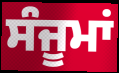
ਸੰਜੂਮਾਂ